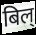
बिल्